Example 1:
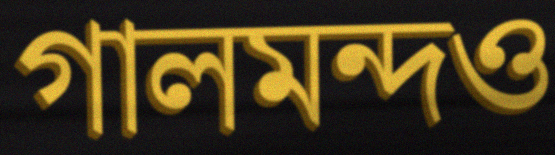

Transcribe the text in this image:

গালমন্দও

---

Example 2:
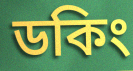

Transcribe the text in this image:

ডকিং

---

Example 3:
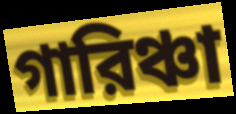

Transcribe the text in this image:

গারিঞ্চা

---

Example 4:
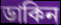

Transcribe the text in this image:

ডাকিন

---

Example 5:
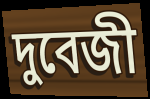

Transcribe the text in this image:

দুবেজী